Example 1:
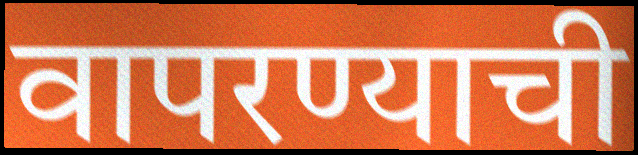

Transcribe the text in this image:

वापरण्याची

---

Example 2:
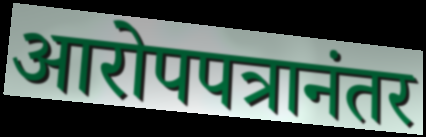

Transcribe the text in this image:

आरोपपत्रानंतर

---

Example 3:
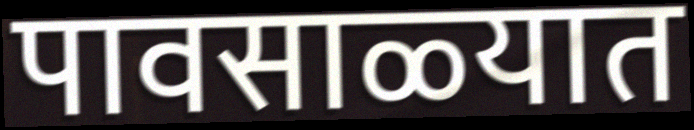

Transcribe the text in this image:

पावसाळ्यात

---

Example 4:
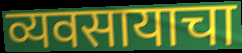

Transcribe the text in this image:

व्यवसायाचा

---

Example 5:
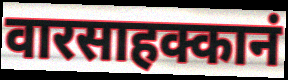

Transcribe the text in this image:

वारसाहक्कानं